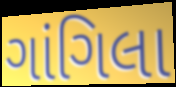
ગાંગિલા